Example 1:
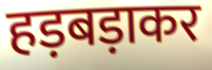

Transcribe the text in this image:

हड़बड़ाकर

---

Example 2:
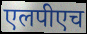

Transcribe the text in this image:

एलपीएच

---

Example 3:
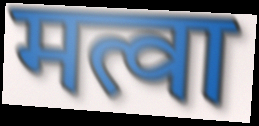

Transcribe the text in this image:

मत्वा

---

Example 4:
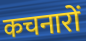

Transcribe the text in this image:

कचनारों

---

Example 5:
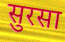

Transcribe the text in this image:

सुरसा